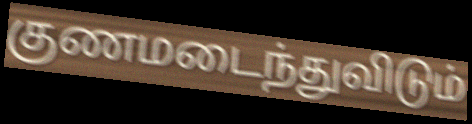
குணமடைந்துவிடும்